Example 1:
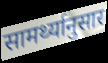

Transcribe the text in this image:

सामर्थ्यानुसार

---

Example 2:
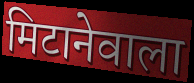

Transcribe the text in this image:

मिटानेवाला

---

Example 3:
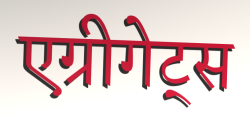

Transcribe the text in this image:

एग्रीगेट्स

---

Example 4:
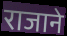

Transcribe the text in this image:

राजाने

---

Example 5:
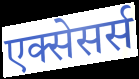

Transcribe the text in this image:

एक्सेसर्स